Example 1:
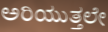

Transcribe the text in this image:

ಅರಿಯುತ್ತಲೇ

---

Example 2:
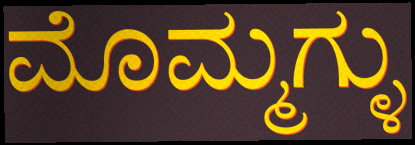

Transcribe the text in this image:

ಮೊಮ್ಮಗ್ಳು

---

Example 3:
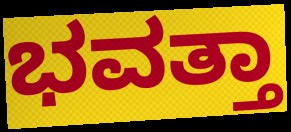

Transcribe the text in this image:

ಭವತ್ತಾ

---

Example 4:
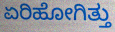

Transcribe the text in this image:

ಏರಿಹೋಗಿತ್ತು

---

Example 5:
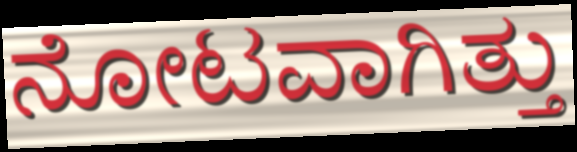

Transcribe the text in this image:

ನೋಟವಾಗಿತ್ತು